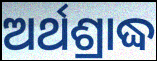
ଅର୍ଥଶ୍ରାଦ୍ଧ